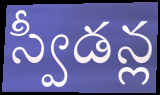
స్వీడన్ల